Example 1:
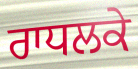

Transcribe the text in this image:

ਰਾਧਲਕੇ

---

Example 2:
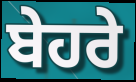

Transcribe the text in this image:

ਬੇਹਰੇ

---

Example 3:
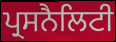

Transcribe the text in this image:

ਪ੍ਰਸਨੈਲਿਟੀ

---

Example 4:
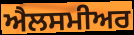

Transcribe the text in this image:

ਐਲਸਮੀਅਰ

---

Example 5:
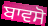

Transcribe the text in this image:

ਬਾਵਸੋ